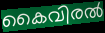
കൈവിരൽ